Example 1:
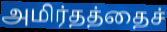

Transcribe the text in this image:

அமிர்தத்தைச்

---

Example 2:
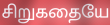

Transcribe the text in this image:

சிறுகதையே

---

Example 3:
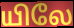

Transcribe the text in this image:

யிலே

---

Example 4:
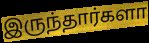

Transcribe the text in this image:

இருந்தார்களா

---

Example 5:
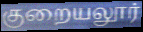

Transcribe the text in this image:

குறையலூர்